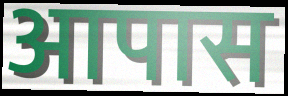
आपास